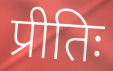
प्रीतिः